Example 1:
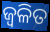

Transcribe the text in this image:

ଜ୍ୱଳିତ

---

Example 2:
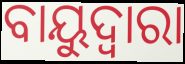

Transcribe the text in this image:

ବାୟୁଦ୍ୱାରା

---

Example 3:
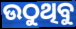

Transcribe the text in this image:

ଉଠୁଥିବୁ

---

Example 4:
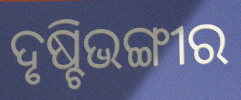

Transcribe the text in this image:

ଦୃଷ୍ଚିଭଙ୍ଗୀର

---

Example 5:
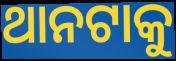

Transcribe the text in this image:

ଥାନଟାକୁ